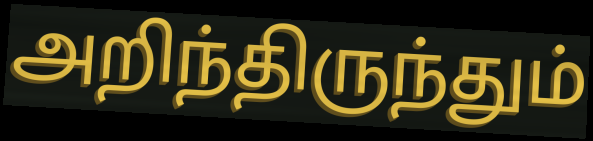
அறிந்திருந்தும்